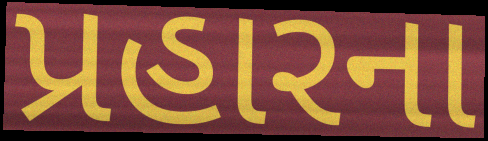
પ્રહારના